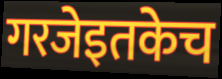
गरजेइतकेच